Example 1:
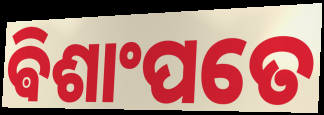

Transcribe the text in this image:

ଵିଶାଂପତେ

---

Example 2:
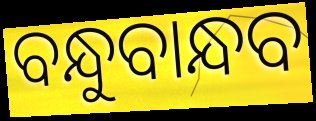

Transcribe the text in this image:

ବନ୍ଧୁବାନ୍ଧବ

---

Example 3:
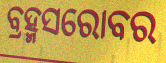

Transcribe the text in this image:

ବ୍ରହ୍ମସରୋବର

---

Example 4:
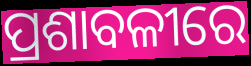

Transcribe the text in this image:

ପ୍ରଶାବଳୀରେ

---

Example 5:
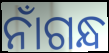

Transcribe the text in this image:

ନାଁଗନ୍ଧ